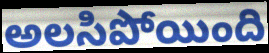
అలసిపోయింది